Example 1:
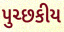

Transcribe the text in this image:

પુચ્છકીય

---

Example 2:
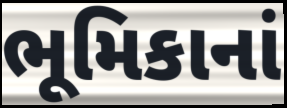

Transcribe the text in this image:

ભૂમિકાનાં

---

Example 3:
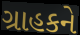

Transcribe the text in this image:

ગ્રાહકને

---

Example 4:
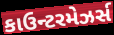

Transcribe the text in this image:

કાઉન્ટરમેઝર્સ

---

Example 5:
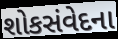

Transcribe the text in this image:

શોકસંવેદના